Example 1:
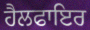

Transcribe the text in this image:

ਹੈਲਫਾਇਰ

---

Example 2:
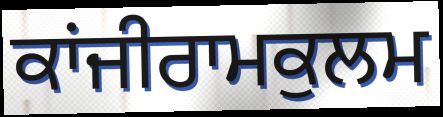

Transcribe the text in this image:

ਕਾਂਜੀਰਾਮਕੁਲਮ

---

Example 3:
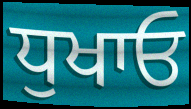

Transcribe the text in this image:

ਧੁਖਾਓ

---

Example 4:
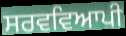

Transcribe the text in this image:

ਸਰਵਵਿਆਪੀ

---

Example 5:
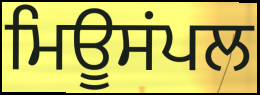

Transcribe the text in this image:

ਮਿਊਸਂਪਲ